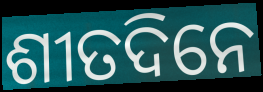
ଶୀତଦିନେ